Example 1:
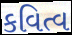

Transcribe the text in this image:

કવિત્વ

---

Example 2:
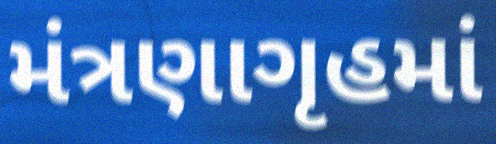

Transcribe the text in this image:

મંત્રણાગૃહમાં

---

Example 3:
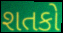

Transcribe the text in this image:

શતકો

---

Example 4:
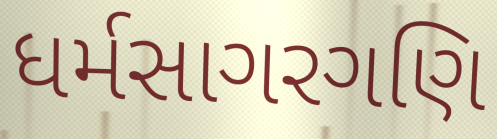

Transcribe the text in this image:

ધર્મસાગરગણિ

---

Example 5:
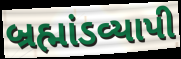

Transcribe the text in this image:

બ્રહ્માંડવ્યાપી